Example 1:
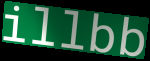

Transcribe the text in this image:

illbb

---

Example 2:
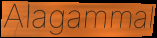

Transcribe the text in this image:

Alagammal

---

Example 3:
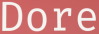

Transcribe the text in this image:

Dore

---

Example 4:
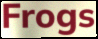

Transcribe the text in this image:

Frogs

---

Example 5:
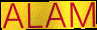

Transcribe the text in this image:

ALAM